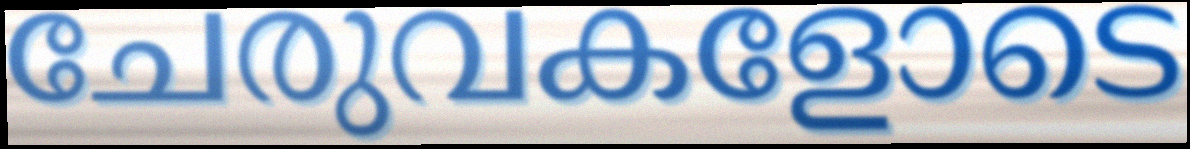
ചേരുവകളോടെ